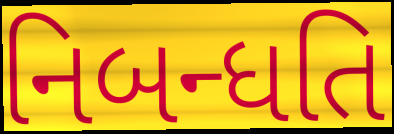
નિબન્ધતિ